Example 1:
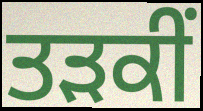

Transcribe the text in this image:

ਤੜਕੀਂ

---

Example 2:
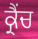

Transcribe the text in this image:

ਕ੍ਰੈਂਚ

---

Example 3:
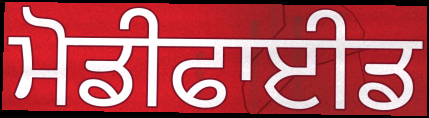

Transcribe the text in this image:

ਮੋਡੀਫਾਈਡ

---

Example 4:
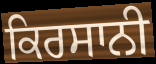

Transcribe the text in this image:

ਕਿਰਸਾਨੀ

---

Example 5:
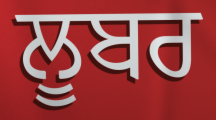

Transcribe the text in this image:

ਲੂਬਰ